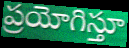
ప్రయోగిస్తూ